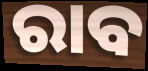
ରାବ